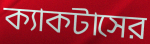
ক্যাকটাসের